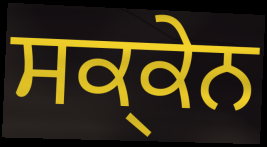
ਸਕ੍ਕੇਨ